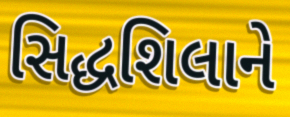
સિદ્ધશિલાને